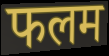
फलम